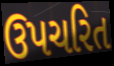
ઉપચરિત